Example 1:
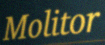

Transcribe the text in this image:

Molitor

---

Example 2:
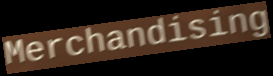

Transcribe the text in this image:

Merchandising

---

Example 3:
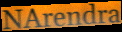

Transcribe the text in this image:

NArendra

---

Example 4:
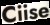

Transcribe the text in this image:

Ciise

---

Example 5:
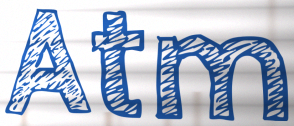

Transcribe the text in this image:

Atm